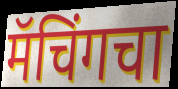
मॅचिंगचा